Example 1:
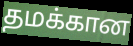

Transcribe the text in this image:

தமக்கான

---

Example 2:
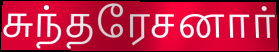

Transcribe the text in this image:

சுந்தரேசனார்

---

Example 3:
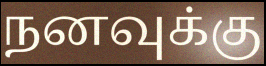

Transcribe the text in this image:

நனவுக்கு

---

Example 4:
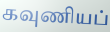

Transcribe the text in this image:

கவுணியப்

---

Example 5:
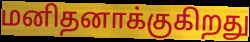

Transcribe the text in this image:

மனிதனாக்குகிறது